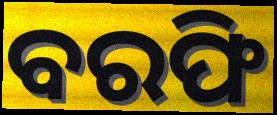
ବରଫି